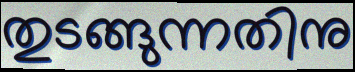
തുടങ്ങുന്നതിനു